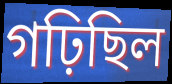
গঢ়িছিল